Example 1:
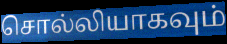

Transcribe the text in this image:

சொல்லியாகவும்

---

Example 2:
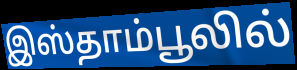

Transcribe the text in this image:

இஸ்தாம்பூலில்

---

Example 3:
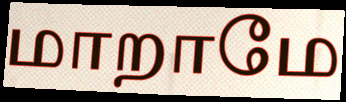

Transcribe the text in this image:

மாறாமே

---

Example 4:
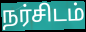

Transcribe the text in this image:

நர்சிடம்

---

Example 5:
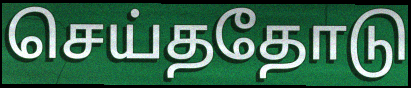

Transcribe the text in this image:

செய்ததோடு